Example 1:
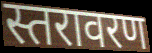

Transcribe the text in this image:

स्तरावरण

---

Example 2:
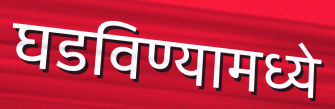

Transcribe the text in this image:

घडविण्यामध्ये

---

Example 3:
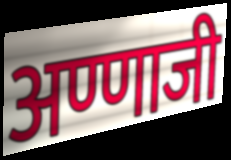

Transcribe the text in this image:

अण्णाजी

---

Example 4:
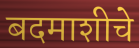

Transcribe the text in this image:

बदमाशीचे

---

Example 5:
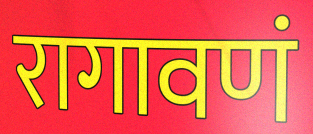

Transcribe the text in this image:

रागावणं